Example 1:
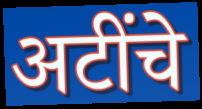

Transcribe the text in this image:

अटींचे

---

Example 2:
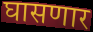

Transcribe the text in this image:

घासणार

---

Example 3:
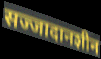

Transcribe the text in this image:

सज्जादानशीन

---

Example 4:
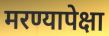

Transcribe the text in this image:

मरण्यापेक्षा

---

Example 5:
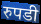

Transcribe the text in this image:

रुपडी